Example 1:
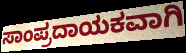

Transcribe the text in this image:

ಸಾಂಪ್ರದಾಯಕವಾಗಿ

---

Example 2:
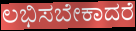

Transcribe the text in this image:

ಲಭಿಸಬೇಕಾದರೆ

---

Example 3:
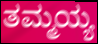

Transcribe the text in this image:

ತಮ್ಮಯ್ಯ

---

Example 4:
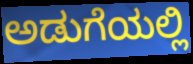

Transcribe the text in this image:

ಅಡುಗೆಯಲ್ಲಿ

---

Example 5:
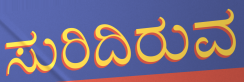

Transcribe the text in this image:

ಸುರಿದಿರುವ